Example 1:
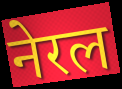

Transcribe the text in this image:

नेरल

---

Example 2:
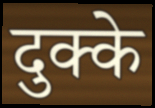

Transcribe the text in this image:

दुक्के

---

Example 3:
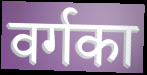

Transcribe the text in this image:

वर्गका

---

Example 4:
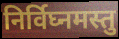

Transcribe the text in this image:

निर्विघ्नमस्तु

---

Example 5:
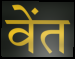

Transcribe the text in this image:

वेंत